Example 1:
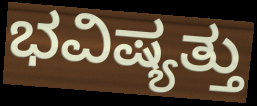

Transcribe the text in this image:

ಭವಿಷ್ಯತ್ತು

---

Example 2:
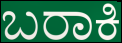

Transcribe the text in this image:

ಬರಾಕಿ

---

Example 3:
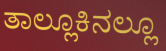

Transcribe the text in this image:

ತಾಲ್ಲೂಕಿನಲ್ಲೂ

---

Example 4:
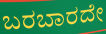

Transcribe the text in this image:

ಬರಬಾರದೇ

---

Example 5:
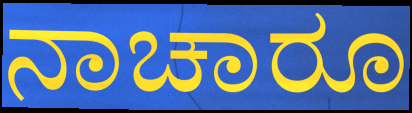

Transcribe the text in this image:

ನಾಚಾರೂ